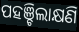
ପହଞ୍ଚିଲାକ୍ଷଣି